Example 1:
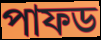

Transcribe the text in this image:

পাফড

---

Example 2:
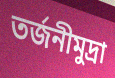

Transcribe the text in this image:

তর্জনীমুদ্রা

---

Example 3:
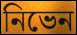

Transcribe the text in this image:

নিভেন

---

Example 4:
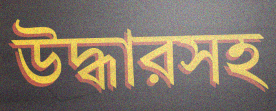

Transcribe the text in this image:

উদ্ধারসহ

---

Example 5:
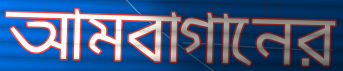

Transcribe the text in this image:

আমবাগানের